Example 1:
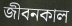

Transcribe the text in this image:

জীবনকাল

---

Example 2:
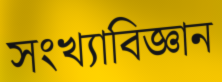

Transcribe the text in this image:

সংখ্যাবিজ্ঞান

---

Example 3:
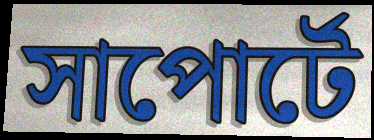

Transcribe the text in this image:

সাপোর্টে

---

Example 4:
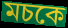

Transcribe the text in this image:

মচকে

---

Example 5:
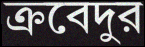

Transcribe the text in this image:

ক্রবেদুর